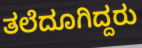
ತಲೆದೂಗಿದ್ದರು